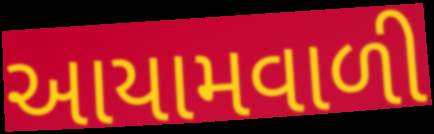
આયામવાળી